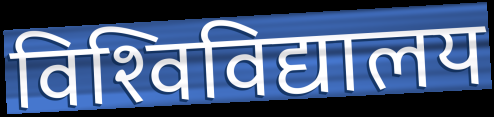
विश्विविद्यालय